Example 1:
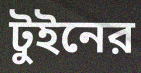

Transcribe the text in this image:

টুইনের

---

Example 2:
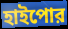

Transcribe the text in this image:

হাইপোর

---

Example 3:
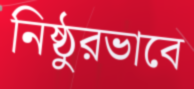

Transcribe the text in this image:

নিষ্ঠুরভাবে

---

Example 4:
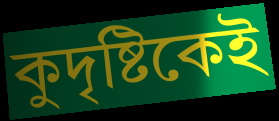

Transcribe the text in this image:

কুদৃষ্টিকেই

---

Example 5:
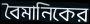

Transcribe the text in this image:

বৈমানিকের